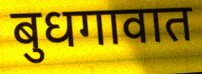
बुधगावात